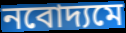
নবোদ্যমে